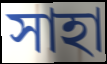
সাহা